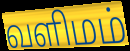
வளிமம்